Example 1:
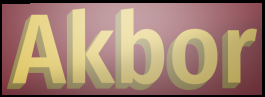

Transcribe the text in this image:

Akbor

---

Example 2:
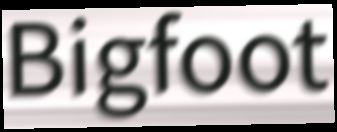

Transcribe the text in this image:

Bigfoot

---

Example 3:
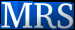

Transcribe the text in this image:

MRS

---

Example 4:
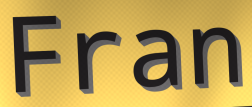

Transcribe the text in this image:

Fran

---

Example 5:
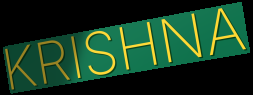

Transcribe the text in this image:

KRISHNA